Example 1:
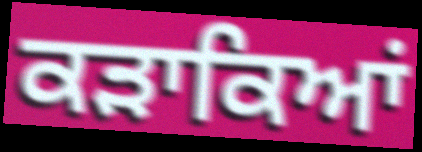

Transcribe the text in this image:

ਕੜਾਕਿਆਂ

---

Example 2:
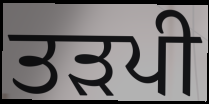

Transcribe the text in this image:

ਤੜਪੀ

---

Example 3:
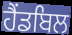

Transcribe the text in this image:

ਹੈਂਡਬਿਲ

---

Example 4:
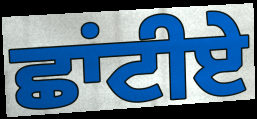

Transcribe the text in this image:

ਛਾਂਟੀਏ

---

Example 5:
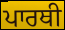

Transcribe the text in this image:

ਪਾਰਥੀ